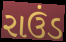
રાઉંડ